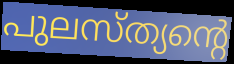
പുലസ്ത്യന്റെ